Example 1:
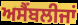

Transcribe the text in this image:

ਅਸੈਂਬਲੀਜਾਂ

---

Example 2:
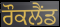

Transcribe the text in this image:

ਰੌਕਲੈਂਡ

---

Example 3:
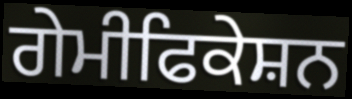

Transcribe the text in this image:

ਗੇਮੀਫਿਕੇਸ਼ਨ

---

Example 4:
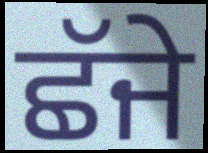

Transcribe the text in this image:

ਛੱਜੇ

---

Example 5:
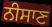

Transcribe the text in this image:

ਨੀਸਾਣ